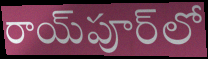
రాయ్‌పూర్‌లో